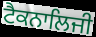
ਟੈਕਨਾਲਿਜੀ